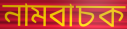
নামবাচক